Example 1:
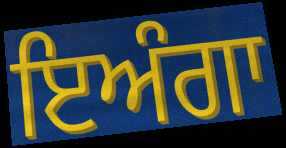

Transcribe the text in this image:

ਇਅੰਗਾ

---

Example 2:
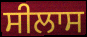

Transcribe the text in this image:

ਸੀਲਾਸ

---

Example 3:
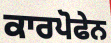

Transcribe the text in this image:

ਕਾਰਪੋਫੇਨ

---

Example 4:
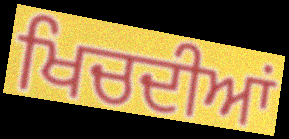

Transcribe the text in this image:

ਖਿਚਦੀਆਂ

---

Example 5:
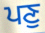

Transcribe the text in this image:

ਪਣੁ